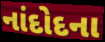
નાંદોદના